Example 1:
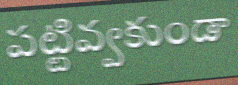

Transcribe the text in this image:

పట్టివ్వకుండా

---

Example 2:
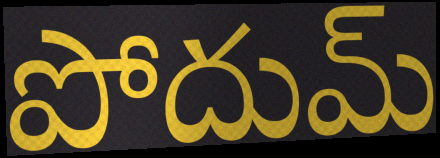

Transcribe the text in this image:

పోదుమ్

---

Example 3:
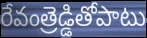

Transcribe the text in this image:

రేవంత్రెడ్డితోపాటు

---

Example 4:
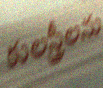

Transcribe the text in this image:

కులస్త్రీలను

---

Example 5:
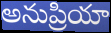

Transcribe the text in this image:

అనుప్రియా